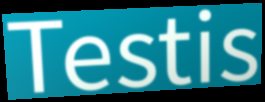
Testis